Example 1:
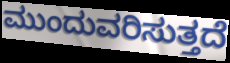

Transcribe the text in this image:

ಮುಂದುವರಿಸುತ್ತದೆ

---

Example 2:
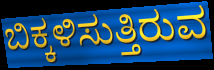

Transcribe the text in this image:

ಬಿಕ್ಕಳಿಸುತ್ತಿರುವ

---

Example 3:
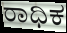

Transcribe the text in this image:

ರಾಧಿಕ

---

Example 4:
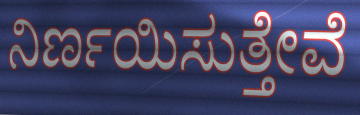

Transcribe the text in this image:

ನಿರ್ಣಯಿಸುತ್ತೇವೆ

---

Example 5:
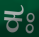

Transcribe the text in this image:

ಕಃ